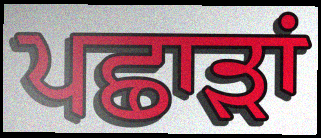
ਪਛਾੜਾਂ